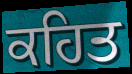
ਕਹਿਤ